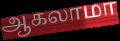
ஆகலாமா